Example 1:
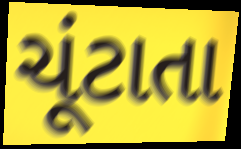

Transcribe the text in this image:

ચૂંટાતા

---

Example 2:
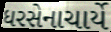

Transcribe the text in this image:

ધરસેનાચાર્યે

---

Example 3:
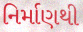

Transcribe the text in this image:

નિર્માણથી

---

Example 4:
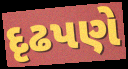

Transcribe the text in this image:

દૃઢપણે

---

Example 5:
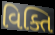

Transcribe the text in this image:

વિક્તિ